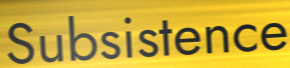
Subsistence